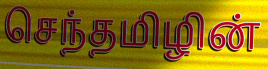
செந்தமிழின்